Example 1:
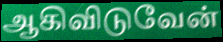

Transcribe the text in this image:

ஆகிவிடுவேன்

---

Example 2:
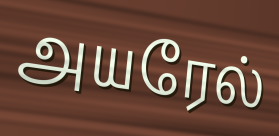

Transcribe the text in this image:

அயரேல்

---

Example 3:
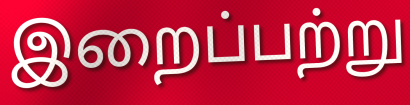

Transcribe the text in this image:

இறைப்பற்று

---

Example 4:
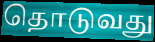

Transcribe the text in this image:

தொடுவது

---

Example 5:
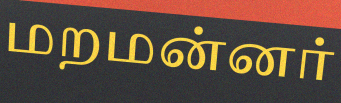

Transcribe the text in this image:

மறமன்னர்